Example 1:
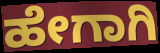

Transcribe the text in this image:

ಹೇಗಾಗಿ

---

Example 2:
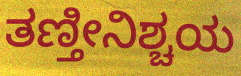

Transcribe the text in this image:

ತಣ್ತೀನಿಶ್ಚಯ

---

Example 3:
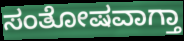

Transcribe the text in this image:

ಸಂತೋಷವಾಗ್ತಾ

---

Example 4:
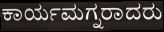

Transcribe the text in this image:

ಕಾರ್ಯಮಗ್ನರಾದರು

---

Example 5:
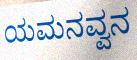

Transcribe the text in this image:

ಯಮನವ್ವನ